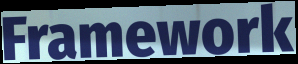
Framework